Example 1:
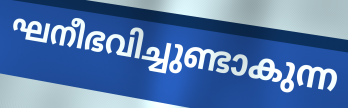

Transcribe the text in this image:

ഘനീഭവിച്ചുണ്ടാകുന്ന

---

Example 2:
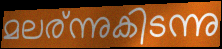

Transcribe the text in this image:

മലര്ന്നുകിടന്നു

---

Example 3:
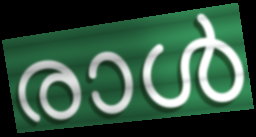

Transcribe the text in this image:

രാൾ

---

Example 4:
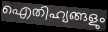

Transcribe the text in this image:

ഐതിഹ്യങ്ങളും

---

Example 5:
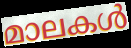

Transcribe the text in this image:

മാലകൾ